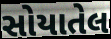
સોયાતેલ